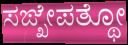
ಸಙ್ಖೇಪತ್ಥೋ